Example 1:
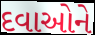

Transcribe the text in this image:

દવાઓને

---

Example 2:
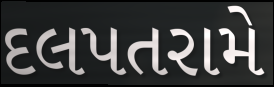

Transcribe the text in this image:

દલપતરામે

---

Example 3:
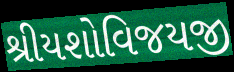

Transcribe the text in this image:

શ્રીયશોવિજયજી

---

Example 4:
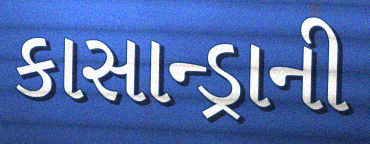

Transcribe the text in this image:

કાસાન્ડ્રાની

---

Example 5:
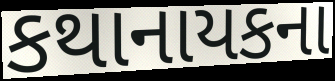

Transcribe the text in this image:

કથાનાયકના